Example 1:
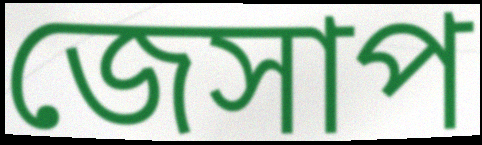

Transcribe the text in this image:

জেসাপ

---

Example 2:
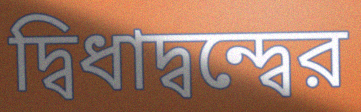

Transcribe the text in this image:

দ্বিধাদ্বন্দ্বের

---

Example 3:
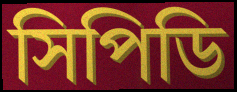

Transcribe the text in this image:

সিপিডি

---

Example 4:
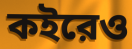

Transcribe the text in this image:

কইরেও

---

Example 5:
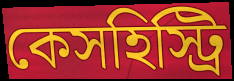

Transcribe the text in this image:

কেসহিস্ট্রি